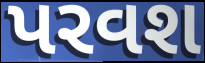
પરવશ